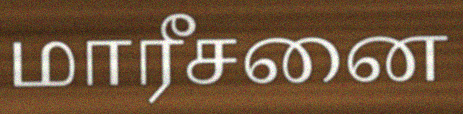
மாரீசனை